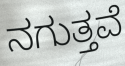
ನಗುತ್ತವೆ